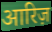
आरिज़